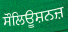
ਸੌਲਿਊਸ਼ਨਜ਼